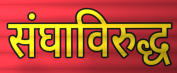
संघाविरुद्ध